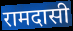
रामदासी